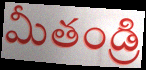
మీతండ్రి